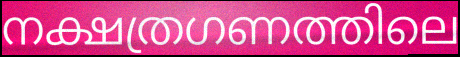
നക്ഷത്രഗണത്തിലെ